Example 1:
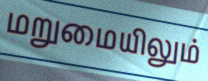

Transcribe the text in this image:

மறுமையிலும்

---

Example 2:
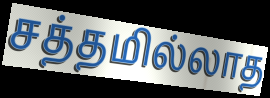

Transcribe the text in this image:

சத்தமில்லாத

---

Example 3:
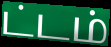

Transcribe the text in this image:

ட்டம்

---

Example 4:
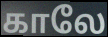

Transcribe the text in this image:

காலே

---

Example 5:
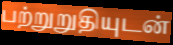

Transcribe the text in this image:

பற்றுறுதியுடன்